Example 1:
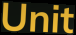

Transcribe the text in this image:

Unit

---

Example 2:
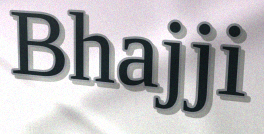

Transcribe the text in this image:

Bhajji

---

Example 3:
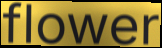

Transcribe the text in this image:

flower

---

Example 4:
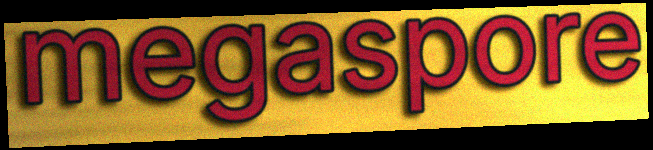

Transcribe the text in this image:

megaspore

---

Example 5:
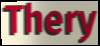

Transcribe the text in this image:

Thery